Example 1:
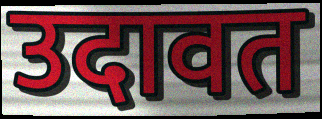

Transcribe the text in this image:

उदावत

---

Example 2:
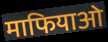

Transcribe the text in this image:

माफियाओ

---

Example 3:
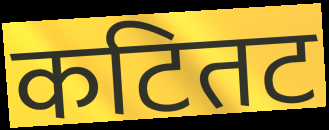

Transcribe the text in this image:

कटितट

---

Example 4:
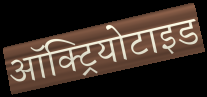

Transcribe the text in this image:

ऑक्ट्रियोटाइड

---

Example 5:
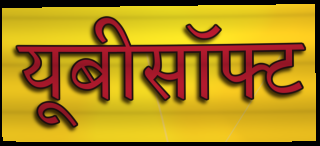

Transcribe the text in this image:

यूबीसॉफ्ट